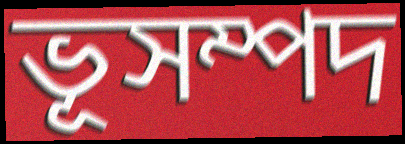
ভূসম্পদ